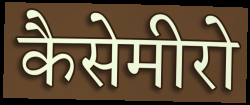
कैसेमीरो